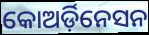
କୋଅର୍ଡ଼ିନେସନ